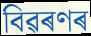
বিৱৰণৰ